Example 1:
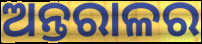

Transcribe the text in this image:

ଅନ୍ତରାଳର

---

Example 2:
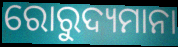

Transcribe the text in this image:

ରୋରୁଦ୍ୟମାନା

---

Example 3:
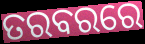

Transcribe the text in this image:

ତରବରରେ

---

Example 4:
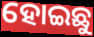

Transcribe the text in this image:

ହୋଇଛୁ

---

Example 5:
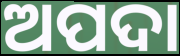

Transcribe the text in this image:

ଅପଦା